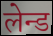
लेन्ड